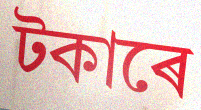
টকাৰে